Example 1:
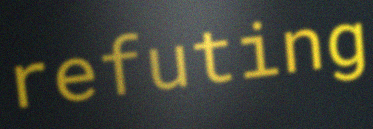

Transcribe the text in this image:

refuting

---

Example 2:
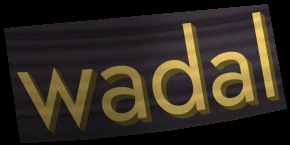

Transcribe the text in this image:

wadal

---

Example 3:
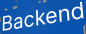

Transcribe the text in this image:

Backend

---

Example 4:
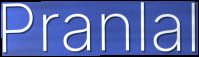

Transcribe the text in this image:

Pranlal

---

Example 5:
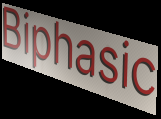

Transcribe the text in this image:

Biphasic